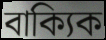
বাক্যিক